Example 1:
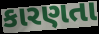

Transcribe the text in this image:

કારણતા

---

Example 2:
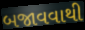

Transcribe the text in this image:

બજાવવાથી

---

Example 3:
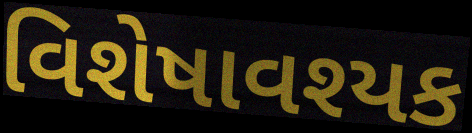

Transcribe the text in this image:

વિશેષાવશ્યક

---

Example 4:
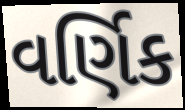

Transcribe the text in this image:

વર્ણિક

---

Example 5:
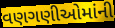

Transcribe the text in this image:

વણગણીઓમાંની